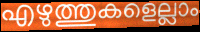
എഴുത്തുകളെല്ലാം